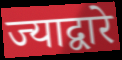
ज्याद्वारे